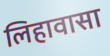
लिहावासा